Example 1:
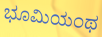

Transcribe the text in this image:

ಭೂಮಿಯಂಥ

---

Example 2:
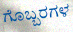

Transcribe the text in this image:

ಗೊಬ್ಬರಗಳ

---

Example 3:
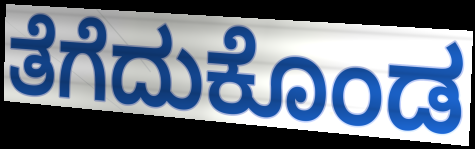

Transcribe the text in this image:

ತೆಗೆದುಕೊಂಡ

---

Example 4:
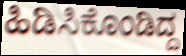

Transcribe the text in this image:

ಹಿಡಿಸಿಕೊಂಡಿದ್ದ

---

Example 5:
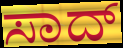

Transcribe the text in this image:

ಸಾದ್